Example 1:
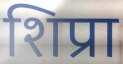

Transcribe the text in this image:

शिप्रा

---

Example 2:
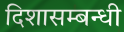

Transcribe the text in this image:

दिशासम्बन्धी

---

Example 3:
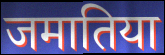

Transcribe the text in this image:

जमातिया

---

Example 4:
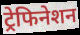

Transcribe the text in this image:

ट्रेफिनेशन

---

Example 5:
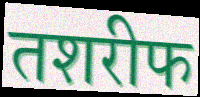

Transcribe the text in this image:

तशरीफ